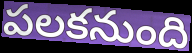
పలకనుంది